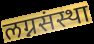
लग्नसंस्था